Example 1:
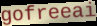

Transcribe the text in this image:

gofreeai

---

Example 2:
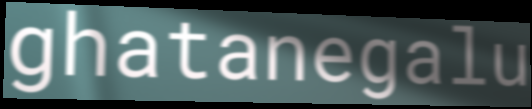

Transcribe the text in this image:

ghatanegalu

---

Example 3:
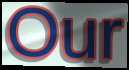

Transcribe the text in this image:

Our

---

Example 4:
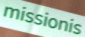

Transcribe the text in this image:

missionis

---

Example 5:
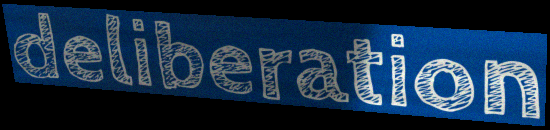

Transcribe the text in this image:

deliberation